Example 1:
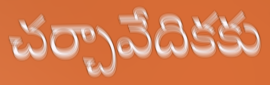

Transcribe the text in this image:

చర్చావేదికకు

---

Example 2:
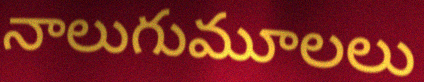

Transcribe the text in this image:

నాలుగుమూలలు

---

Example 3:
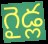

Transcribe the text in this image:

గైడ్ల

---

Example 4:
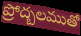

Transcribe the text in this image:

ప్రోద్బలముతో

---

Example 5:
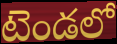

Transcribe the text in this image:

టెండలో